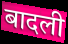
बादली